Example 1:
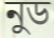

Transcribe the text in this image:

নুড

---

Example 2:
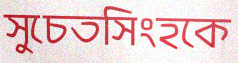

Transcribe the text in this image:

সুচেতসিংহকে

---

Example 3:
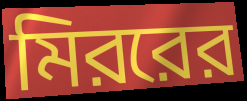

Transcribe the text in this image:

মিররের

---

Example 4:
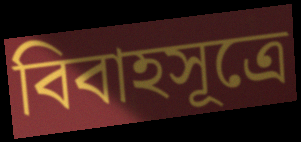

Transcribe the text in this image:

বিবাহসূত্রে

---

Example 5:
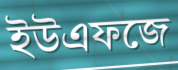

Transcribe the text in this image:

ইউএফজে